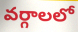
వర్గాలలో